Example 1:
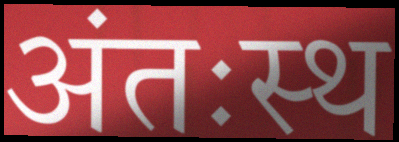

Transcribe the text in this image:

अंतःस्थ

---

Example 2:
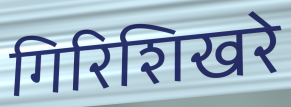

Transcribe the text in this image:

गिरिशिखरे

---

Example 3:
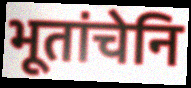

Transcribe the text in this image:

भूतांचेनि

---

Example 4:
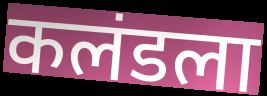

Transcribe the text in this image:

कलंडला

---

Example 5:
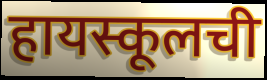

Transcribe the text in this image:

हायस्कूलची